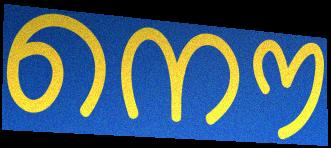
നൌ